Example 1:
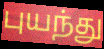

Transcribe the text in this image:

புயந்து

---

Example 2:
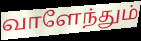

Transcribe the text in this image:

வாளேந்தும்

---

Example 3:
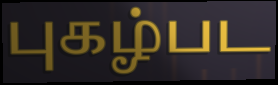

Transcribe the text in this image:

புகழ்பட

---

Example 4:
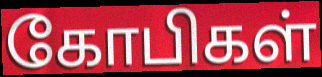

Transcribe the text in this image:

கோபிகள்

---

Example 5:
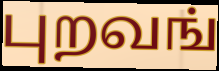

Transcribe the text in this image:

புறவங்